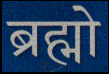
ब्रह्मो